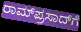
ರಾಮ್‌ಪ್ರಸಾದ್‌ಗೆ